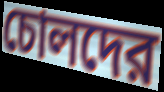
চোলদের